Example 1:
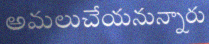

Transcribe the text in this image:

అమలుచేయనున్నారు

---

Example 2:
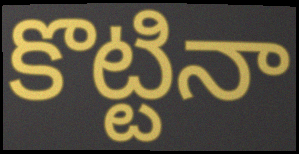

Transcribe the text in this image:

కొట్టినా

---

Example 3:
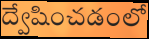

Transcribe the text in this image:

ద్వేషించడంలో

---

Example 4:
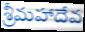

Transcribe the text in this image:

శ్రీమహాదేవ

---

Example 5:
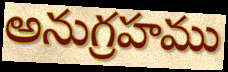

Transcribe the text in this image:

అనుగ్రహము